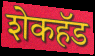
शेकहॅड